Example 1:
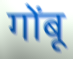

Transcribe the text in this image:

गोंबू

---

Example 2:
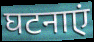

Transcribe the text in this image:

घटनाएं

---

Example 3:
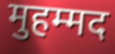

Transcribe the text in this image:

मुहम्मद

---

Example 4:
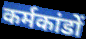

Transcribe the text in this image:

कर्मकांडों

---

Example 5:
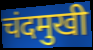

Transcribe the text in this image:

चंदमुखी